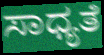
ಸಾಧ್ಯತೆ